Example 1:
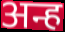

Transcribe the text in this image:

अन्ह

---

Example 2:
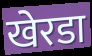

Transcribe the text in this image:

खेरडा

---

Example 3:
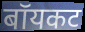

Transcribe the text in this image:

बॉयकट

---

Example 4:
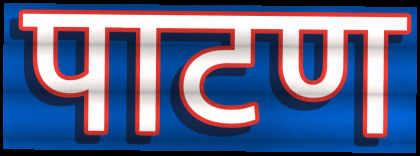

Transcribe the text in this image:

पाटण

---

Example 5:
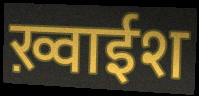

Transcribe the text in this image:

ख़्वाईश